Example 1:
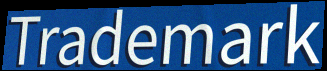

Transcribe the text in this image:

Trademark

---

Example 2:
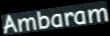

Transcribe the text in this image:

Ambaram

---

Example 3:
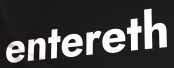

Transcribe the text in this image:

entereth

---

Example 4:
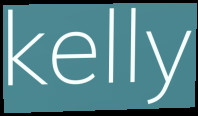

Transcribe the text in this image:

kelly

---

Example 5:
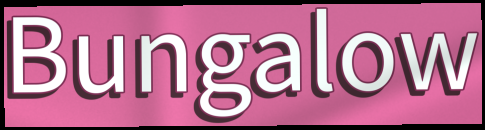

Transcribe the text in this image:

Bungalow